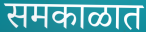
समकाळात